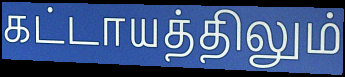
கட்டாயத்திலும்